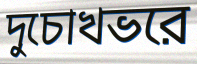
দুচোখভরে